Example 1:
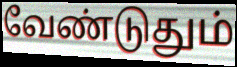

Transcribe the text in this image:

வேண்டுதும்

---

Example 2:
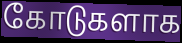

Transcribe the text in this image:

கோடுகளாக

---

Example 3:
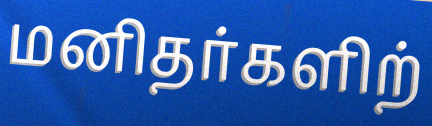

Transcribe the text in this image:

மனிதர்களிற்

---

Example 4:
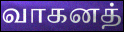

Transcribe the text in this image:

வாகனத்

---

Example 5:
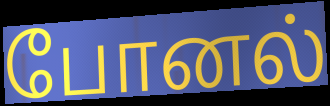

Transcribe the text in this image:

போனல்